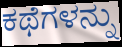
ಕಥೆಗಳನ್ನು